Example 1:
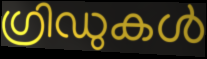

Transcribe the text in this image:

ഗ്രിഡുകൾ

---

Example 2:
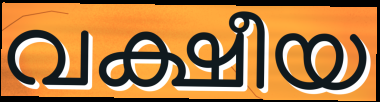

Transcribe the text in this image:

വക്ഷീയ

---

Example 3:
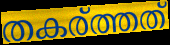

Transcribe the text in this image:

തകര്ത്തത്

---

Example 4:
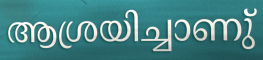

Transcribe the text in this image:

ആശ്രയിച്ചാണു്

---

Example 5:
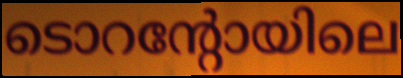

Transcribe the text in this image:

ടൊറന്റോയിലെ